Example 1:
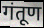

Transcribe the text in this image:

गंतूण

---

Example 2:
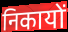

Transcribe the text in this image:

निकायों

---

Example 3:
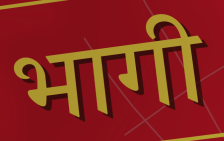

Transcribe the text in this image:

भागी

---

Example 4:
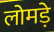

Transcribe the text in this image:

लोमड़े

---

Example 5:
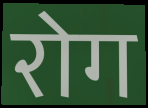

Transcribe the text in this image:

रोग